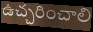
ఉచ్చరించాలి